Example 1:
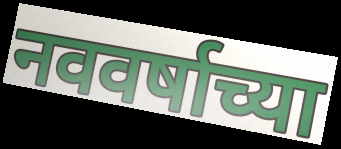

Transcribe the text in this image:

नववर्षाच्या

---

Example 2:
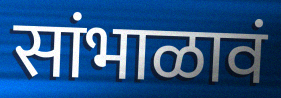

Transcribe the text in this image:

सांभाळावं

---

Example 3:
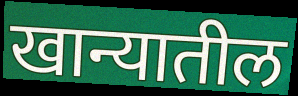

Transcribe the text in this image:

खान्यातील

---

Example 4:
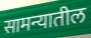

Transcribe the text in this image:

सामन्यातील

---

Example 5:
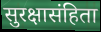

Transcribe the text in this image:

सुरक्षासंहिता